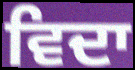
ਵਿਦਾ